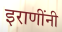
इराणींनी